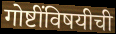
गोष्टींविषयीची